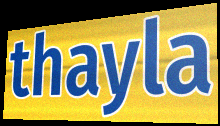
thayla